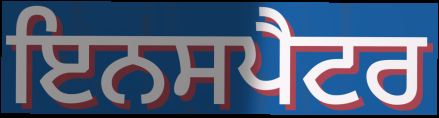
ਇਨਸਪੈਟਰ